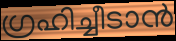
ഗ്രഹിച്ചീടാൻ